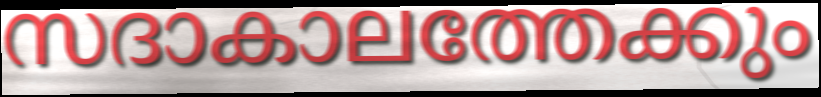
സദാകാലത്തേക്കും